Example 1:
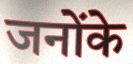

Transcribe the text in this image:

जनोंके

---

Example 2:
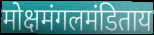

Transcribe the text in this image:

मोक्षमंगलमंडिताय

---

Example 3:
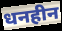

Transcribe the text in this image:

धनहीन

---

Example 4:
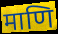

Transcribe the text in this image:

माणि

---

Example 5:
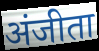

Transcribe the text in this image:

अंजीता